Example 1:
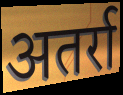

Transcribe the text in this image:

अतर्रा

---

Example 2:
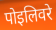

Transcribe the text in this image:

पोइलिवरे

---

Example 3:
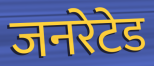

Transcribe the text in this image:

जनरेटेड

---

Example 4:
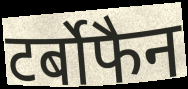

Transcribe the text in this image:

टर्बोफैन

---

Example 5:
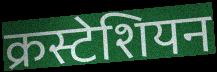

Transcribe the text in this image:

क्रस्टेशियन